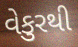
વેકુરથી